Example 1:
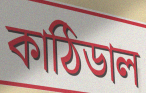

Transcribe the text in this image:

কাঠিডাল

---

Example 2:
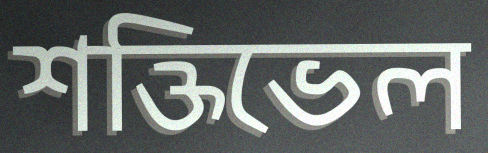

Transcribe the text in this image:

শক্তিভেল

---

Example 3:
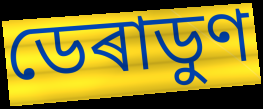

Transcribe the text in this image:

ডেৰাডুণ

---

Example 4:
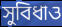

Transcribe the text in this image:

সুবিধাও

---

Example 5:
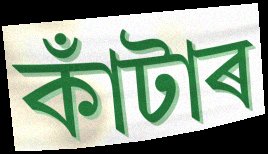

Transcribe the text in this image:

কাঁটাৰ